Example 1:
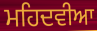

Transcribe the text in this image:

ਮਹਿਦਵੀਆ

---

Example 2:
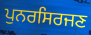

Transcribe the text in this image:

ਪੁਨਰਸਿਰਜਣ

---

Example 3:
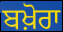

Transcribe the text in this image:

ਬਖ਼ੋਰਾ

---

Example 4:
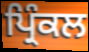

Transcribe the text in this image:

ਪ੍ਰਿੰਕਲ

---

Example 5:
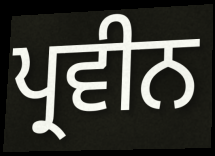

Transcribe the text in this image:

ਪ੍ਰਵੀਨ